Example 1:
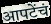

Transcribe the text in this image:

आपटेंचं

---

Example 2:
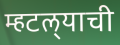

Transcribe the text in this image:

म्हटल्याची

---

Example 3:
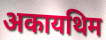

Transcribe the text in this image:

अकायथिम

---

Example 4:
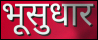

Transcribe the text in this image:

भूसुधार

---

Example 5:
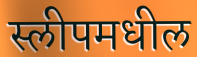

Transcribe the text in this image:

स्लीपमधील